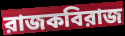
রাজকবিরাজ